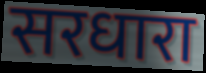
सरधारा